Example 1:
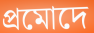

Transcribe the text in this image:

প্ৰমোদে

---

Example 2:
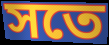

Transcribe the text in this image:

সতে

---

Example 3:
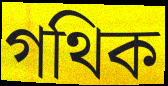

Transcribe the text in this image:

গথিক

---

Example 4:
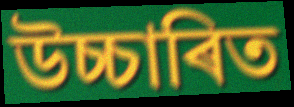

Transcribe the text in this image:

উচ্চাৰিত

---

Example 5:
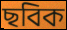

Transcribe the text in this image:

ছবিক